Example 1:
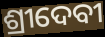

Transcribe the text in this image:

ଶ୍ରୀଦେବୀ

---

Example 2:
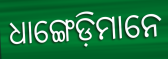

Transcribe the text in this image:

ଧାଙ୍ଗେଡ଼ିମାନେ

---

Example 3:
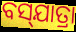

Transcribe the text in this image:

ବସ୍‌ଯାତ୍ରା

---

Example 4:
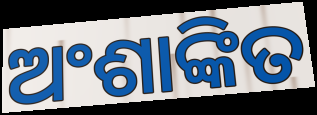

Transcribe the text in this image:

ଅଂଶାଙ୍କିତ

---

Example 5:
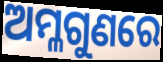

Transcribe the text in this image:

ଅମ୍ଳଗୁଣରେ